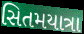
સિતમયાત્રા